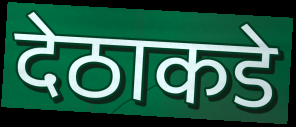
देठाकडे